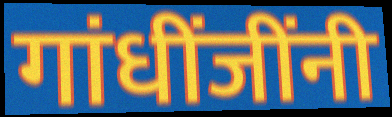
गांधींजींनी